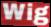
Wig